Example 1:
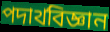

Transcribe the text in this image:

পদার্থবিজ্ঞান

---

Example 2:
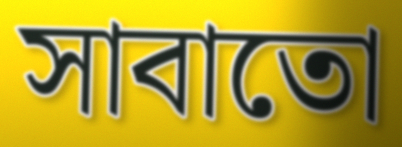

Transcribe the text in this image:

সাবাতো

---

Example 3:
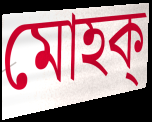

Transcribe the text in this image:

মোহক্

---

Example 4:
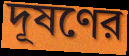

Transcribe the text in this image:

দূষণের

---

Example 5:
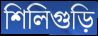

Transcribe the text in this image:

শিলিগুড়ি